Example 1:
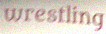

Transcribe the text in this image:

wrestling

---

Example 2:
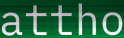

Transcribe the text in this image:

attho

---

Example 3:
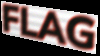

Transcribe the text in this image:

FLAG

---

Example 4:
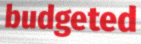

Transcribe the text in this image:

budgeted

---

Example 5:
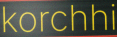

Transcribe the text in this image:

korchhi